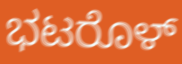
ಭಟರೊಳ್